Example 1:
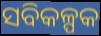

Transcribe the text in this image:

ସବିକଳ୍ପକ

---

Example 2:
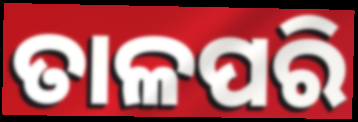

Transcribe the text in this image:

ତାଳପରି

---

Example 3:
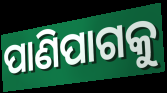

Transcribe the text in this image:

ପାଣିପାଗକୁ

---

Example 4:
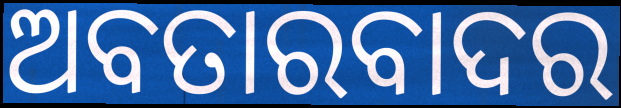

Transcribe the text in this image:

ଅବତାରବାଦର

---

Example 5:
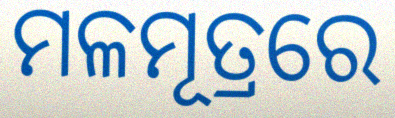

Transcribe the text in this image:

ମଳମୂତ୍ରରେ